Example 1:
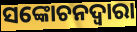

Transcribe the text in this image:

ସଙ୍କୋଚନଦ୍ୱାରା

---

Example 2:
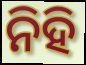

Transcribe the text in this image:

ନିହି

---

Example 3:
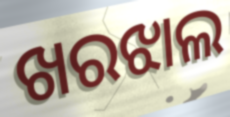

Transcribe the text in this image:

ଖରଝାଲ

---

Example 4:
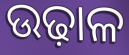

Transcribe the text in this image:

ଉଢ଼ାଳ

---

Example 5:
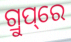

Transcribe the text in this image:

ଗ୍ରୁପ୍‌ରେ